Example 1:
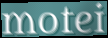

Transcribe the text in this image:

motei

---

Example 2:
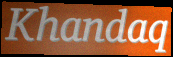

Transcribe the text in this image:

Khandaq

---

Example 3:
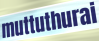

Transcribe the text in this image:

muttuthurai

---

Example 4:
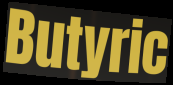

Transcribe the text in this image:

Butyric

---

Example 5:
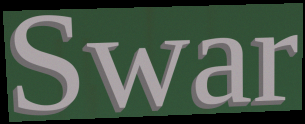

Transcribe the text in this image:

Swar